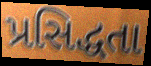
પ્રસિદ્ધતા